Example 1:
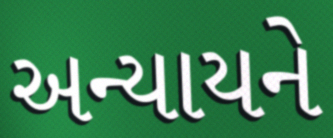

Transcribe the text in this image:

અન્યાયને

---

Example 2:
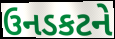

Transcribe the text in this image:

ઉનડકટને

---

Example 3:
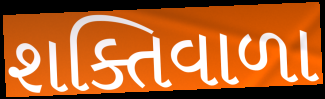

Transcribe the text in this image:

શક્તિવાળા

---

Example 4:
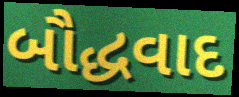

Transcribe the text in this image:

બૌદ્ધવાદ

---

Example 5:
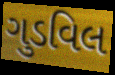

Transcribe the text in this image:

ગુડવિલ